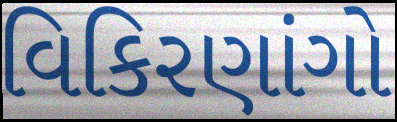
વિકિરણાંગો